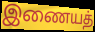
இணையத்